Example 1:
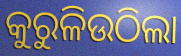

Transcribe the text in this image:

କୁରୁଳିଉଠିଲା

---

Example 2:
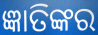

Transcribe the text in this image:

ଜ୍ଞାତିଙ୍କର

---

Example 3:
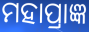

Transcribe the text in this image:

ମହାପ୍ରାଜ୍ଞ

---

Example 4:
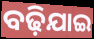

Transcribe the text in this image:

ବଢ଼ିଯାଇ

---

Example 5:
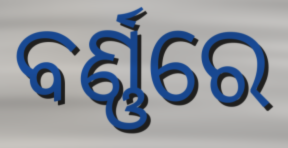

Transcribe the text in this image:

ବର୍ଣ୍ଣରେ